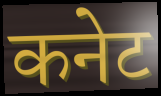
कनेट